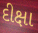
દીક્ષા